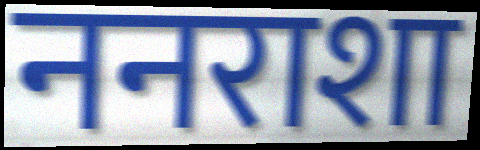
ननराशा